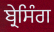
ਬ੍ਰੇਸਿੰਗ